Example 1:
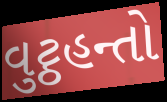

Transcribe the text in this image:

વુટ્ઠહન્તો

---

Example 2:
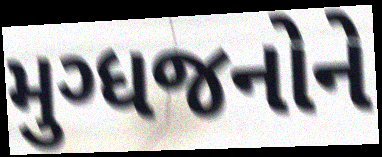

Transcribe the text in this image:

મુગ્ધજનોને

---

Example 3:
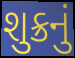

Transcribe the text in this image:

શુક્રનું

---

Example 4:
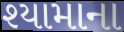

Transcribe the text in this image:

શ્યામાના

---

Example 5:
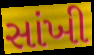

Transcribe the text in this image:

સાંખી